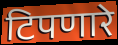
टिपणारे